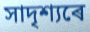
সাদৃশ্যৰে